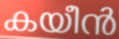
കയീൻ